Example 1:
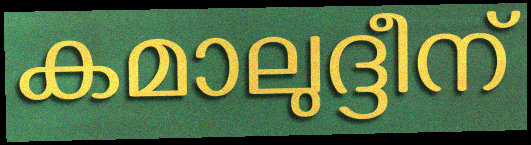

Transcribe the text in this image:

കമാലുദ്ദീന്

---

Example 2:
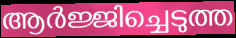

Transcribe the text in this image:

ആർജ്ജിച്ചെടുത്ത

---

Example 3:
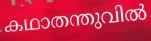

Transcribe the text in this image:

കഥാതന്തുവിൽ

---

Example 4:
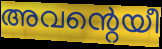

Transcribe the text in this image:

അവന്റെയീ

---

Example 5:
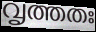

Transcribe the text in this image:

വൃത്തതഃ